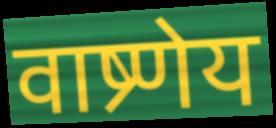
वाष्र्णेय